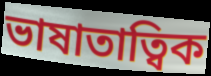
ভাষাতাত্বিক